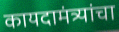
कायदामंत्र्यांचा